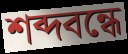
শব্দবন্ধে